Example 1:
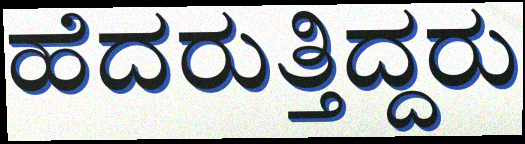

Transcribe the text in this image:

ಹೆದರುತ್ತಿದ್ದರು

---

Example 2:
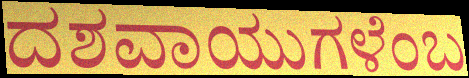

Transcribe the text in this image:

ದಶವಾಯುಗಳೆಂಬ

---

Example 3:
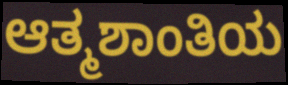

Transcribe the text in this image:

ಆತ್ಮಶಾಂತಿಯ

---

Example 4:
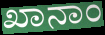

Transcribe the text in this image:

ಖಾನಾಂ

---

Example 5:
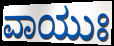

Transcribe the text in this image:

ವಾಯುಃ